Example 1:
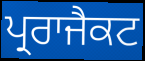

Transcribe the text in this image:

ਪ੍ਰਰਾਜੈਕਟ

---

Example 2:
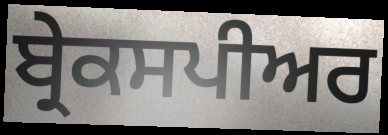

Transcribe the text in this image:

ਬ੍ਰੇਕਸਪੀਅਰ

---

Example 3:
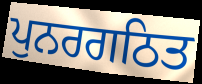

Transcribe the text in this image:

ਪੁਨਰਗਠਿਤ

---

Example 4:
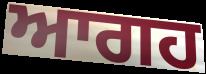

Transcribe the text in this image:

ਆਗਹ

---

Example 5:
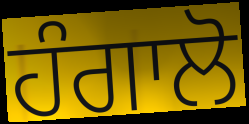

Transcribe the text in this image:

ਹੰਗਾਲੋ